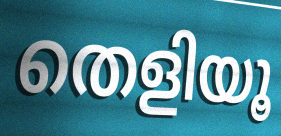
തെളിയൂ